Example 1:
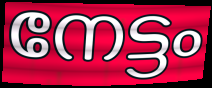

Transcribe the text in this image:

നേട്ടം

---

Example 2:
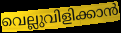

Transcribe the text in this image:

വെല്ലുവിളിക്കാൻ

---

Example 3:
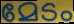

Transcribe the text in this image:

മേടം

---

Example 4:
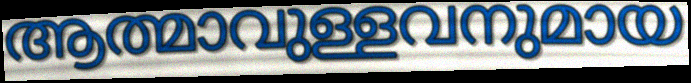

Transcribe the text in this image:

ആത്മാവുള്ളവനുമായ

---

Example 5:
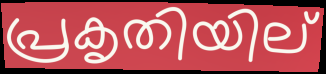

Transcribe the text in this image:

പ്രകൃതിയില്